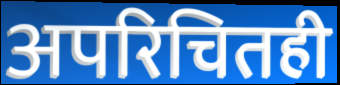
अपरिचितही